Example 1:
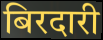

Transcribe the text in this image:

बिरदारी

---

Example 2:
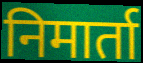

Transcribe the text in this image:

निमार्ता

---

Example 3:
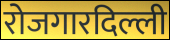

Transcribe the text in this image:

रोजगारदिल्ली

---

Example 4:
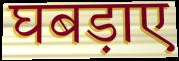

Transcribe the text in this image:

घबड़ाए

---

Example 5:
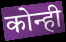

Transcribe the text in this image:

कोन्ही